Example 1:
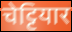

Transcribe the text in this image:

चेट्टियार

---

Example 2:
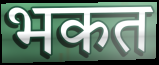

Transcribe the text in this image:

भकत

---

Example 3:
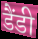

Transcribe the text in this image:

डैंडी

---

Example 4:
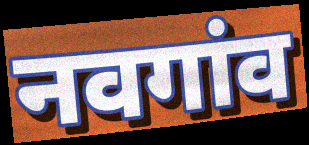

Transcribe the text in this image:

नवगांव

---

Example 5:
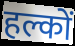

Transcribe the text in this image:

हल्कों